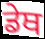
ਡੇਥ